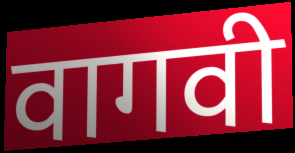
वागवी